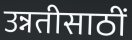
उन्नतीसाठीं